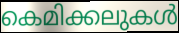
കെമിക്കലുകൾ